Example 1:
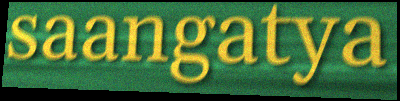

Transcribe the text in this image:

saangatya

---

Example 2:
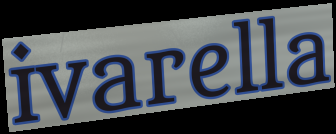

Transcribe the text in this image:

ivarella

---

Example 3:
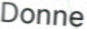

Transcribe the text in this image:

Donne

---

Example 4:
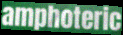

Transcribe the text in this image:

amphoteric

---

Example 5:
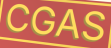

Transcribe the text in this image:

CGAS